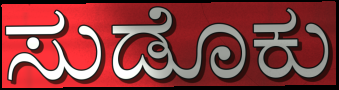
ಸುಡೊಕು